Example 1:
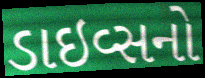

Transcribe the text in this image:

ડાઇવ્સનો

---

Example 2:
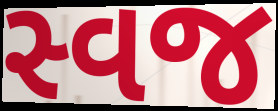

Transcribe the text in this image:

સ્વજ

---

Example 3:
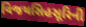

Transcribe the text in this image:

વિજયસિહસૂરિની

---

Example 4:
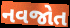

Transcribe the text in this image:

નવજોત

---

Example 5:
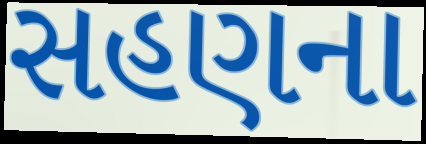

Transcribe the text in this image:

સહણના